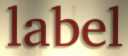
label